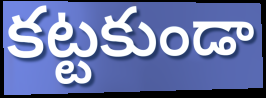
కట్టకుండా